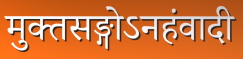
मुक्तसङ्गोऽनहंवादी